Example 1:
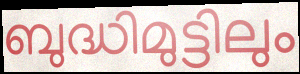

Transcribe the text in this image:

ബുദ്ധിമുട്ടിലും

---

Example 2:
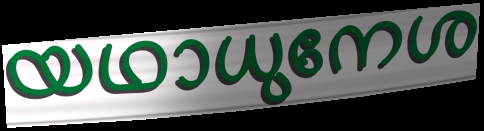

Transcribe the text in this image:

യഥാധുനേശ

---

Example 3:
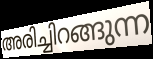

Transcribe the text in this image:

അരിച്ചിറങ്ങുന്ന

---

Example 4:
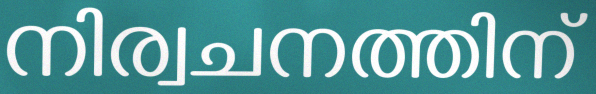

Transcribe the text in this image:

നിര്വചനത്തിന്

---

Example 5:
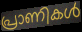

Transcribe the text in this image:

പ്രാണികൾ